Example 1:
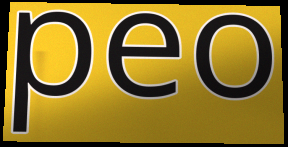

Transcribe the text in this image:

peo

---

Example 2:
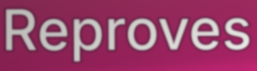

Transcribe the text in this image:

Reproves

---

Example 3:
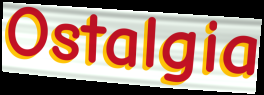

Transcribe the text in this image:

Ostalgia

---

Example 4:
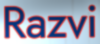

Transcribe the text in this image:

Razvi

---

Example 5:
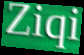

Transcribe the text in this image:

Ziqi